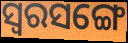
ସ୍ୱରସଙ୍ଗେ